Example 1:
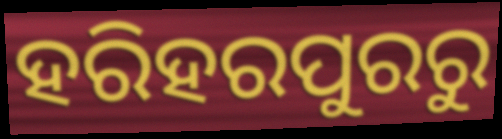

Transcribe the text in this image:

ହରିହରପୁରରୁ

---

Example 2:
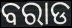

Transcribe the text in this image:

ବରାଡ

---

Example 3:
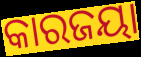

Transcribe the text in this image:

କାରଜୟା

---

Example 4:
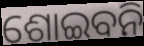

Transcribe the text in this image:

ଶୋଇବନି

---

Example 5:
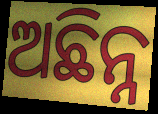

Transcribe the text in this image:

ଅଛିନ୍ନ